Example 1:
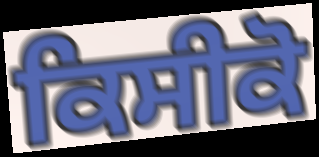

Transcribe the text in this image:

ਕਿਸੀਕੋ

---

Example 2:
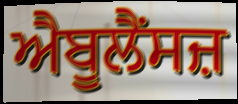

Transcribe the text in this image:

ਐਬੂਲੈਂਸਜ਼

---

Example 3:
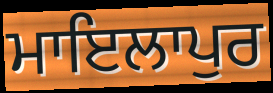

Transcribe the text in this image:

ਮਾਇਲਾਪੁਰ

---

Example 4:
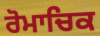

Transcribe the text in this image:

ਰੋਮਾਚਿਕ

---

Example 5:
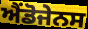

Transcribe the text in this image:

ਐਂਡੋਜੇਨਸ